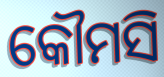
କୌମସି